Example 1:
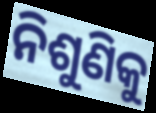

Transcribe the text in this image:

ନିଶୁଣିକୁ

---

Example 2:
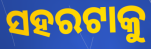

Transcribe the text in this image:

ସହରଟାକୁ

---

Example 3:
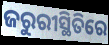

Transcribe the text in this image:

ଜରୁରୀସ୍ଥିତିରେ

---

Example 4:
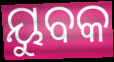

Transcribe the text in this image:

ୟୁବକ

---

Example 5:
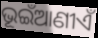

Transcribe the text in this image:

ଭୂଇଁଆଣୀଏଁ